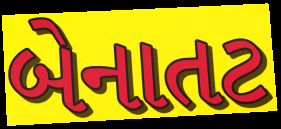
બેનાતટ